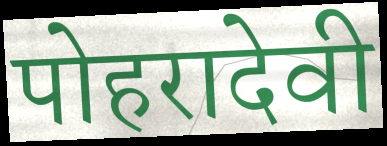
पोहरादेवी